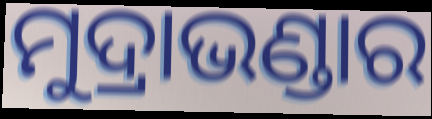
ମୁଦ୍ରାଭଣ୍ଡାର